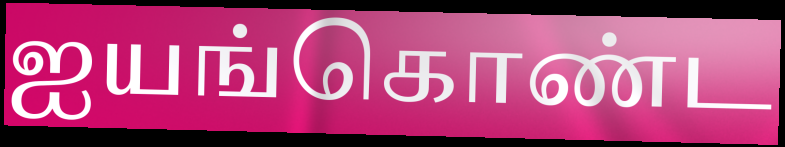
ஐயங்கொண்ட